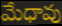
మేధావు